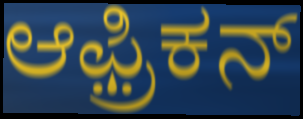
ಆಫ಼್ರಿಕನ್